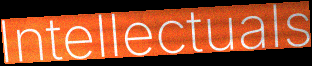
Intellectuals